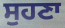
ਸੁਹਣਾ